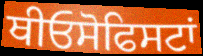
ਥੀਓਸੋਫਿਸਟਾਂ